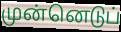
முன்னெடுப்